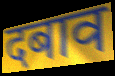
दबाव